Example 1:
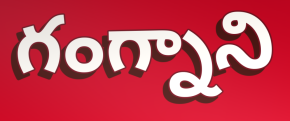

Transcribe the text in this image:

గంగ్నాని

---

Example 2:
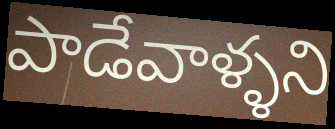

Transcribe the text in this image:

పాడేవాళ్ళని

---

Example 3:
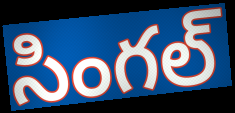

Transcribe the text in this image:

సింగల్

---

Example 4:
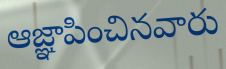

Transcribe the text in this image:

ఆజ్ఞాపించినవారు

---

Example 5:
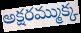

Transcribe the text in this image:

అక్షరమ్ముక్క